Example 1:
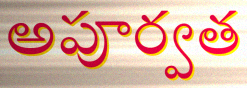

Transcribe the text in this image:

అపూర్వత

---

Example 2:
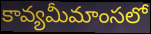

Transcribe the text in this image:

కావ్యమీమాంసలో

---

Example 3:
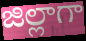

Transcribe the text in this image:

జిల్లాగా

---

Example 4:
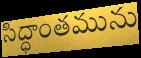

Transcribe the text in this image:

సిద్ధాంతమును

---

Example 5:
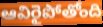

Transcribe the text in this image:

ఆవిరైపోతోంది